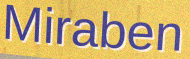
Miraben